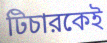
টিচারকেই